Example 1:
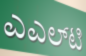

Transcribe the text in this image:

ಎಎಲ್‌ಟಿ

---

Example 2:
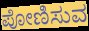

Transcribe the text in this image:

ಪೋಣಿಸುವ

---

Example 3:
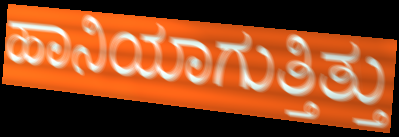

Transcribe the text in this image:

ಹಾನಿಯಾಗುತ್ತಿತ್ತು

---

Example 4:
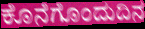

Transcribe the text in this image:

ಕೊನೆಗೊಂದುದಿನ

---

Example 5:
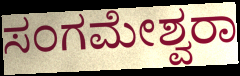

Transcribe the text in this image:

ಸಂಗಮೇಶ್ವರಾ